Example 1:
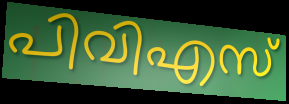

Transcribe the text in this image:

പിവിഎസ്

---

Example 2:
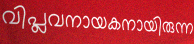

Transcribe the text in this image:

വിപ്ലവനായകനായിരുന്ന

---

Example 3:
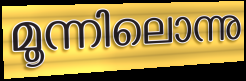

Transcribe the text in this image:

മൂന്നിലൊന്നു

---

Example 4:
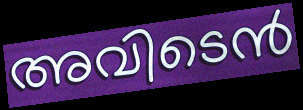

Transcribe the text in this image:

അവിടെൻ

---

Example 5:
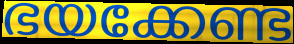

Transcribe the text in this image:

ഭയക്കേണ്ട